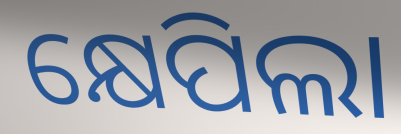
କ୍ଷେପିଲା